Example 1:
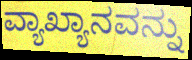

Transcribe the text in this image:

ವ್ಯಾಖ್ಯಾನವನ್ನು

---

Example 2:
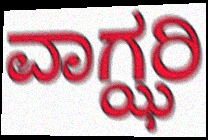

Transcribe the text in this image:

ವಾಗ್ಝರಿ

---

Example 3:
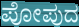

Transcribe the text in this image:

ಪೋಪುದ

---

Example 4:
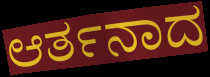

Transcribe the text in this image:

ಆರ್ತನಾದ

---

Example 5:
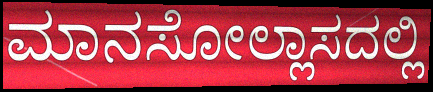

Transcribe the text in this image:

ಮಾನಸೋಲ್ಲಾಸದಲ್ಲಿ